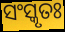
ସଂସ୍କୃତଃ